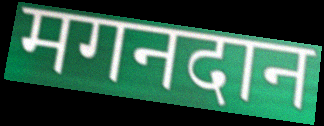
मगनदान